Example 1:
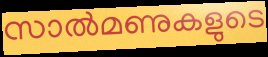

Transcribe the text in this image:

സാൽമണുകളുടെ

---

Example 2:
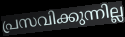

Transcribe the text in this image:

പ്രസവിക്കുന്നില്ല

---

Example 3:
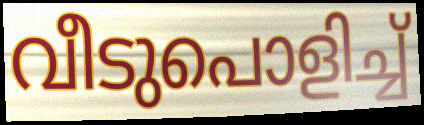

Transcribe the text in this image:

വീടുപൊളിച്ച്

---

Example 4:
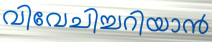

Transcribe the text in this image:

വിവേചിച്ചറിയാൻ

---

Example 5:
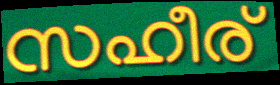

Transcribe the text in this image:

സഹീര്